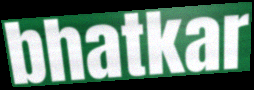
bhatkar